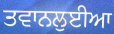
ਤਵਾਨਲੁਈਆ